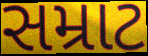
સમ્રાટ